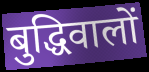
बुद्धिवालों